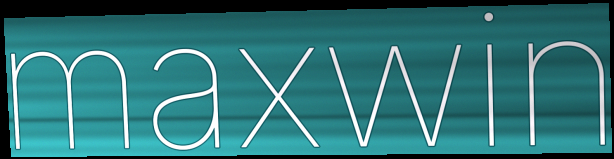
maxwin